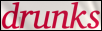
drunks